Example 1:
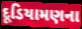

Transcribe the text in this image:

દૂડિયામણના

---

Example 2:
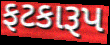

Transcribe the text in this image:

ફટકારૂપ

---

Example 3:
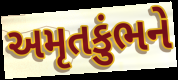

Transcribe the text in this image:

અમૃતકુંભને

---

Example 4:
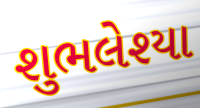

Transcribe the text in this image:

શુભલેશ્યા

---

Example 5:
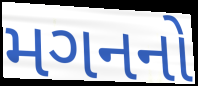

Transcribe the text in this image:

મગનનો